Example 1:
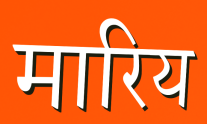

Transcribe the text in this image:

मारिय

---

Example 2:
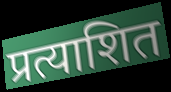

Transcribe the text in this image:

प्रत्याशित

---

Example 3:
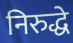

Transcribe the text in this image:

निरुद्धे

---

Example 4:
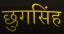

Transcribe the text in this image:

छुगसिंह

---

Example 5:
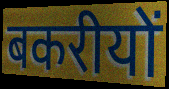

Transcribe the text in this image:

बकरीयों